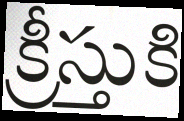
క్రీస్తుకి